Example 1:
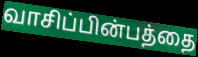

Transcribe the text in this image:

வாசிப்பின்பத்தை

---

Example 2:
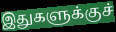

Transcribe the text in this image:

இதுகளுக்குச்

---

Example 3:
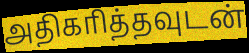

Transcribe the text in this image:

அதிகரித்தவுடன்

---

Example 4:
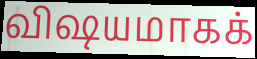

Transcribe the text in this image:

விஷயமாகக்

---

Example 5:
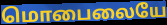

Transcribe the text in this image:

மொபைலையே